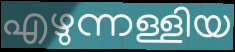
എഴുന്നള്ളിയ